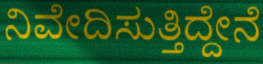
ನಿವೇದಿಸುತ್ತಿದ್ದೇನೆ